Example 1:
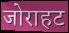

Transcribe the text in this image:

जोराहट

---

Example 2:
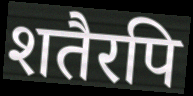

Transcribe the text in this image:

शतैरपि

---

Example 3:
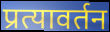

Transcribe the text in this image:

प्रत्‍यावर्तन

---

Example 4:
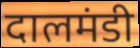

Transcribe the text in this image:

दालमंडी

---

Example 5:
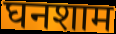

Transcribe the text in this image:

घनशाम